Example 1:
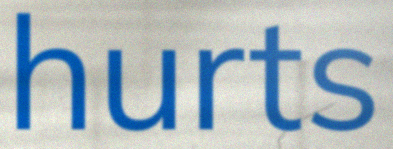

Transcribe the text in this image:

hurts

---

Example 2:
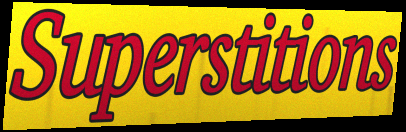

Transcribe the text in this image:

Superstitions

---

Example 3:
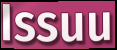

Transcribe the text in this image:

Issuu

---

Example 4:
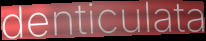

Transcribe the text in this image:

denticulata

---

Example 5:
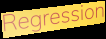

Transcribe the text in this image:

Regression